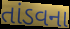
તાંડવના